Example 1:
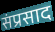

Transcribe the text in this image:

संप्रसाद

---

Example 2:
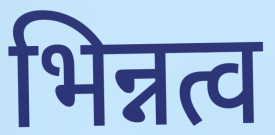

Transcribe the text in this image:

भिन्नत्व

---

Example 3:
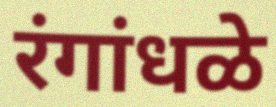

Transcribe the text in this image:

रंगांधळे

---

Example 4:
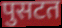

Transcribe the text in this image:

पुसटत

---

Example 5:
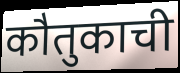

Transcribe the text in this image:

कौतुकाची